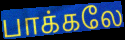
பாக்கலே